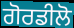
ਗੋਰਡੀਲੋ